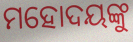
ମହୋଦୟଙ୍କୁ